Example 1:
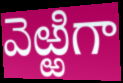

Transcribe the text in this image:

వెఱ్ఱిగా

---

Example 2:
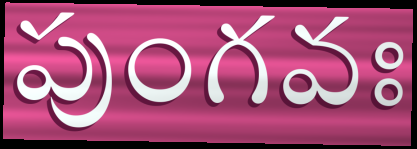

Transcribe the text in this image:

పుంగవః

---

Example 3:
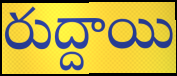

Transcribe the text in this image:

రుద్దాయి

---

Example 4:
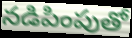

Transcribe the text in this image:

నడిపింపుతో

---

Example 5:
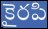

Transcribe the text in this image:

కైరపి